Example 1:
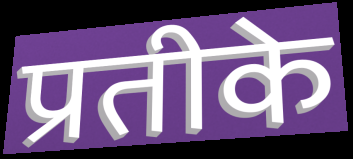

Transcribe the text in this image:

प्रतीके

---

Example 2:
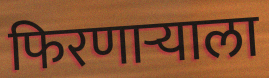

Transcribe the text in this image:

फिरणाऱ्याला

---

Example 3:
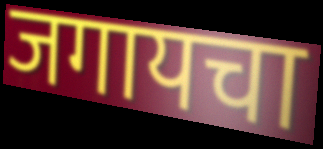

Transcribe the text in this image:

जगायचा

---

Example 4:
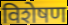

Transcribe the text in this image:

विशेषण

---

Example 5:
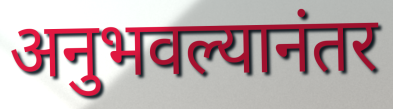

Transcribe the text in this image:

अनुभवल्यानंतर